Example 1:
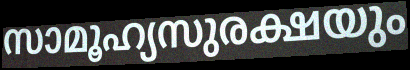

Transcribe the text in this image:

സാമൂഹ്യസുരക്ഷയും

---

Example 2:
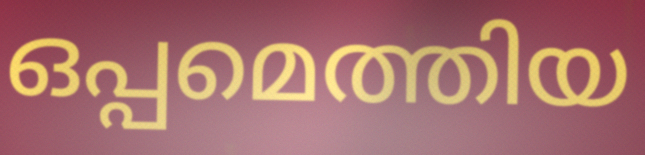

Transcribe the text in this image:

ഒപ്പമെത്തിയ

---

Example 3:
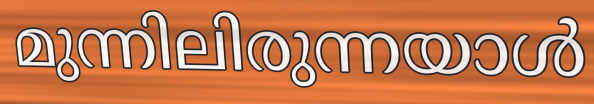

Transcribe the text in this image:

മുന്നിലിരുന്നയാൾ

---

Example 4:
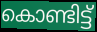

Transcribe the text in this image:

കൊണ്ടിട്ട്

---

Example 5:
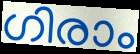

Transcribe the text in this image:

ഗിരാം